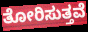
ತೋರಿಸುತ್ತವೆ